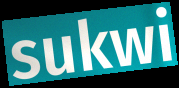
sukwi